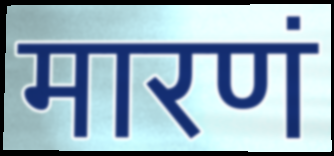
मारणं